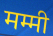
मम्मी